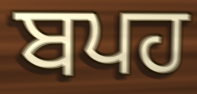
ਬਪਹ